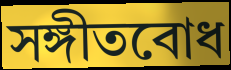
সঙ্গীতবোধ